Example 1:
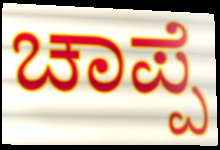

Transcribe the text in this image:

ಚಾಪ್ಪೆ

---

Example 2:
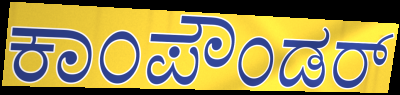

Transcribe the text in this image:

ಕಾಂಪೌಂಡರ್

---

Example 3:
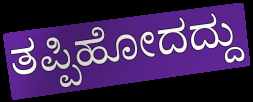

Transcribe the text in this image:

ತಪ್ಪಿಹೋದದ್ದು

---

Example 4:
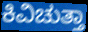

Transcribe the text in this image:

ಕಿವಿಚುತ್ತಾ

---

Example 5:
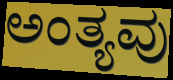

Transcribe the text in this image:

ಅಂತ್ಯವು